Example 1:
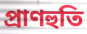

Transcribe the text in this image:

প্ৰাণহুতি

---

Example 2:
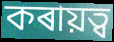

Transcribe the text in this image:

কৰায়ত্ব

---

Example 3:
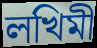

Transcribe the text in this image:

লখিমী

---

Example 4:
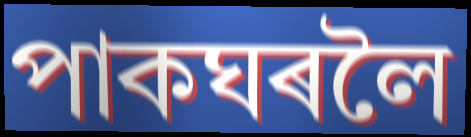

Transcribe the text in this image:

পাকঘৰলৈ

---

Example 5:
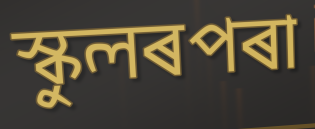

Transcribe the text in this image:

স্কুলৰপৰা